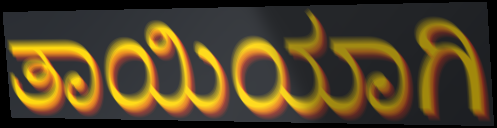
ತಾಯಿಯಾಗಿ